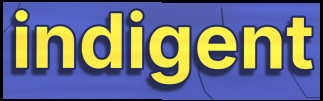
indigent